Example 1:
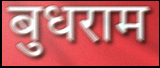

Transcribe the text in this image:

बुधराम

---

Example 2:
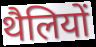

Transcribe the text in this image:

थैलियों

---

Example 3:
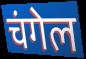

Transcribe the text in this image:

चंगेल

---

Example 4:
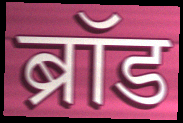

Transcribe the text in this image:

ब्रॉड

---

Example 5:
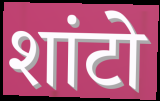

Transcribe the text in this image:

शांटो